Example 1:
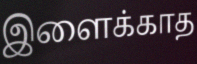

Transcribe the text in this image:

இளைக்காத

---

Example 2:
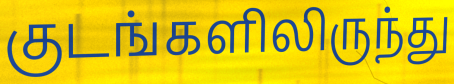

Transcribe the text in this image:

குடங்களிலிருந்து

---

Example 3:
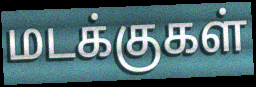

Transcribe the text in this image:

மடக்குகள்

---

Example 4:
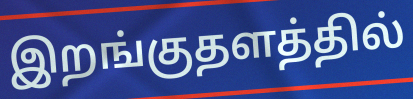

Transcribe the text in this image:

இறங்குதளத்தில்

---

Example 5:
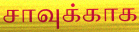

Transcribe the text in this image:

சாவுக்காக